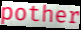
pother